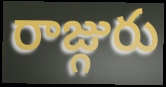
రాజ్గురు